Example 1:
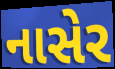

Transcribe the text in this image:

નાસેર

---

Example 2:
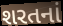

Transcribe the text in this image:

શરતનાં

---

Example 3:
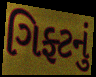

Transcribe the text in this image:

ગિફ્ટનું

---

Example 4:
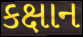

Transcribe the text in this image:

કક્ષાન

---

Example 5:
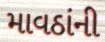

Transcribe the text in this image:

માવઠાંની